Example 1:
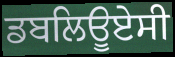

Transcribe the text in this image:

ਡਬਲਿਊਏਸੀ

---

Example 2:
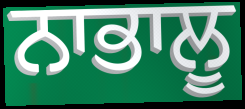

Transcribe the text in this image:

ਨਾਭਾਲੂ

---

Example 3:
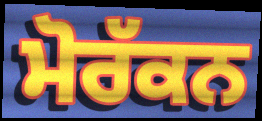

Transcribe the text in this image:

ਮੋਰੱਕਨ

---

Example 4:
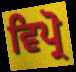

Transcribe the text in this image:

ਵਿਪ੍ਰੋ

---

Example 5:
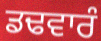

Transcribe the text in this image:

ਡਢਵਾਰੰ